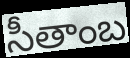
సీతాంబ